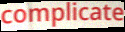
complicate